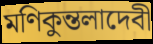
মণিকুন্তলাদেবী